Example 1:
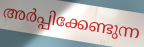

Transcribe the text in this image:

അർപ്പിക്കേണ്ടുന്ന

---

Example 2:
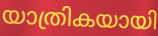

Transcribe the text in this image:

യാത്രികയായി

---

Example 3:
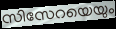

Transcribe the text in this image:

സിസേറയെയും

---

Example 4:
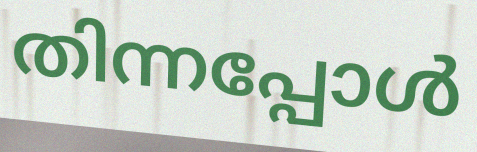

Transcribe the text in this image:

തിന്നപ്പോൾ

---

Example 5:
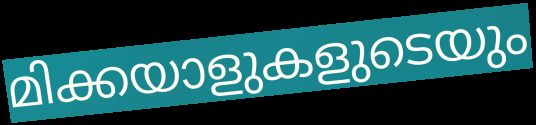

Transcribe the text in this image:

മിക്കയാളുകളുടെയും